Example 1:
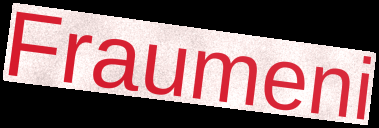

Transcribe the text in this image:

Fraumeni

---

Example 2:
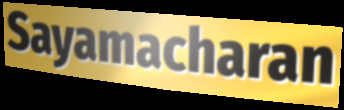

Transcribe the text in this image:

Sayamacharan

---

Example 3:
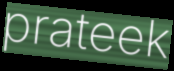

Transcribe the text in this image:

prateek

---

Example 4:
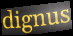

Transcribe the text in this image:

dignus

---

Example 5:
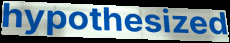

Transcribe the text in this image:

hypothesized